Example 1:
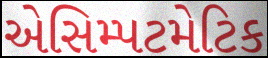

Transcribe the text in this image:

એસિમ્પટમેટિક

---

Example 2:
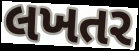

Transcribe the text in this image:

લખતર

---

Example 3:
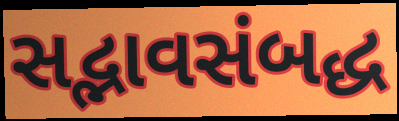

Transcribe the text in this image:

સદ્ભાવસંબદ્ધ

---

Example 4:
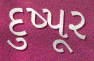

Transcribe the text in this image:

દુષ્પૂર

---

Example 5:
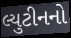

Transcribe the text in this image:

લ્યુટીનનો